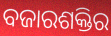
ବଜାରଶକ୍ତିର